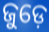
ଜୁଡ଼େ